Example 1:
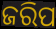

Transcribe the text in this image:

ଜରିପ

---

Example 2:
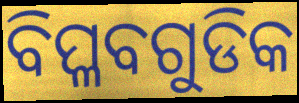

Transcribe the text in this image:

ବିପ୍ଳବଗୁଡିକ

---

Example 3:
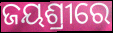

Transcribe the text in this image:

ଜୟଶ୍ରୀରେ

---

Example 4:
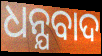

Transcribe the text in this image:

ଧନ୍ଯବାଦ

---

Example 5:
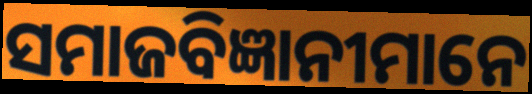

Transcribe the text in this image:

ସମାଜବିଜ୍ଞାନୀମାନେ